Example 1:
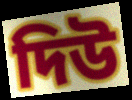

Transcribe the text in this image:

দিউ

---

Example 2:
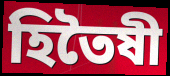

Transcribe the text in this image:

হিতৈষী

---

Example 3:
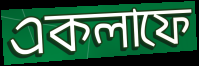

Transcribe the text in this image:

একলাফে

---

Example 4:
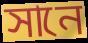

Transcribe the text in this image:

সানে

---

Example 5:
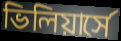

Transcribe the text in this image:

ভিলিয়ার্সে